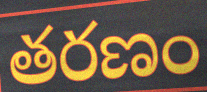
తరణం